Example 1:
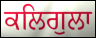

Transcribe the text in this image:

ਕਲਿਗੁਲਾ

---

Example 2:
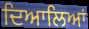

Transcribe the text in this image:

ਦਿਆਲਿਆਂ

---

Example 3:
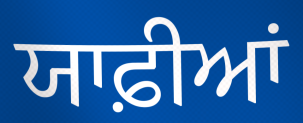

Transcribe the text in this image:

ਯਾਫ਼ੀਆਂ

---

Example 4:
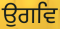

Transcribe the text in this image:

ਉਗਵਿ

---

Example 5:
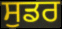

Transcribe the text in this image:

ਸੁਡਰ